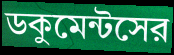
ডকুমেন্টসের